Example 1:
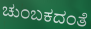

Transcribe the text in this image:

ಚುಂಬಕದಂತೆ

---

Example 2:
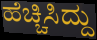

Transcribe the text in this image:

ಹೆಚ್ಚಿಸಿದ್ದು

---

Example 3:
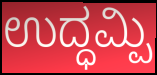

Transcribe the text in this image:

ಉದ್ಧಮ್ಪಿ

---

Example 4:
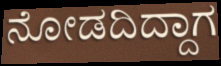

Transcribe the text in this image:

ನೋಡದಿದ್ದಾಗ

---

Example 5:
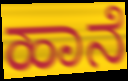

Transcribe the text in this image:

ಹಾನೆ